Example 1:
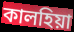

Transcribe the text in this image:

কালহিয়া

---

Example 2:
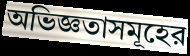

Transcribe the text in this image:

অভিজ্ঞতাসমূহের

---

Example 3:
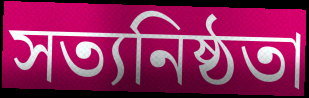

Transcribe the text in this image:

সত্যনিষ্ঠতা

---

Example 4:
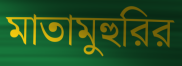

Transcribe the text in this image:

মাতামুহুরির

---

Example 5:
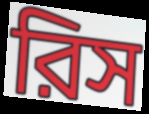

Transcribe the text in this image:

রিস